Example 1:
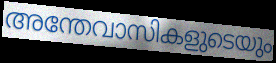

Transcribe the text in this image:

അന്തേവാസികളുടെയും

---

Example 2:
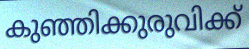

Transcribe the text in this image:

കുഞ്ഞിക്കുരുവിക്ക്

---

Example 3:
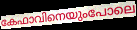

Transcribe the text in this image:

കേഫാവിനെയുംപോലെ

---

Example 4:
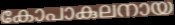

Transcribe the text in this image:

കോപാകുലനായ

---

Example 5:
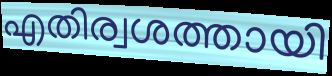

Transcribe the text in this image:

എതിര്വശത്തായി